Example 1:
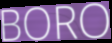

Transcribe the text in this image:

BORO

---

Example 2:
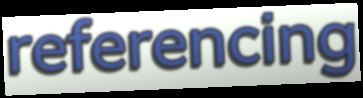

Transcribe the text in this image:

referencing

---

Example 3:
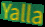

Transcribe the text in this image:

Yalla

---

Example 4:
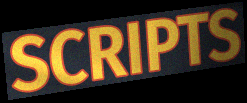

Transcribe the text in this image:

SCRIPTS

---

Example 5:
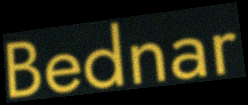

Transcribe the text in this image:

Bednar